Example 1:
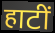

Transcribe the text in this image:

हाटीं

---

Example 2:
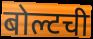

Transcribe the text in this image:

बोल्टची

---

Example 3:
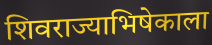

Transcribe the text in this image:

शिवराज्याभिषेकाला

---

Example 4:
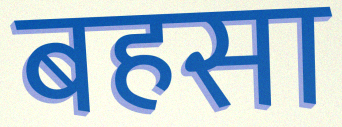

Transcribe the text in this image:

बहसा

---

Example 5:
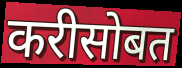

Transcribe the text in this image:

करीसोबत